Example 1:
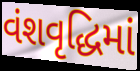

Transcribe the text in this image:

વંશવૃદ્ધિમાં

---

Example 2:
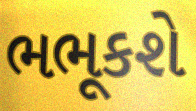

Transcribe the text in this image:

ભભૂકશે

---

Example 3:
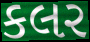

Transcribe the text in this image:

કલર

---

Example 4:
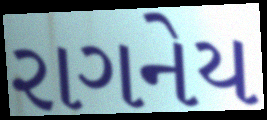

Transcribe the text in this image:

રાગનેય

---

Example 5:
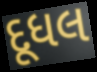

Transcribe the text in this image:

દૂધલ